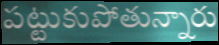
పట్టుకుపోతున్నారు